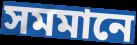
সমমানে